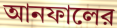
আনফালের